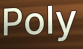
Poly